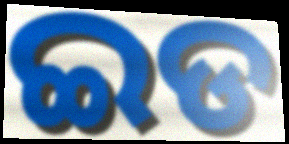
ଇଡ